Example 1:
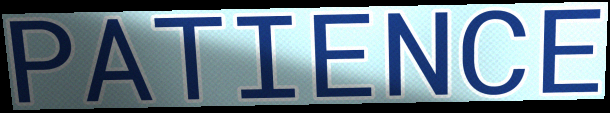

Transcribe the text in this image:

PATIENCE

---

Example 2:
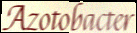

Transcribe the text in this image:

Azotobacter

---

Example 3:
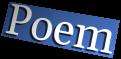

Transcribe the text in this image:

Poem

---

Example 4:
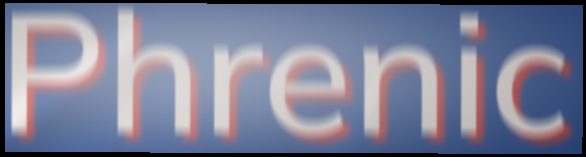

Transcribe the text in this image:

Phrenic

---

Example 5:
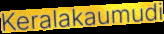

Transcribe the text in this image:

Keralakaumudi